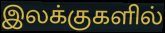
இலக்குகளில்